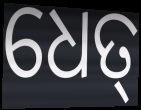
ଧେତ୍